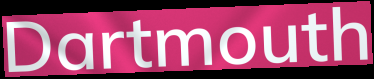
Dartmouth